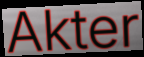
Akter